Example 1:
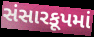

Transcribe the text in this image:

સંસારકૂપમાં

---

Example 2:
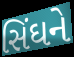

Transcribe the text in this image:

સિંઘને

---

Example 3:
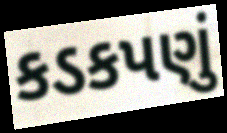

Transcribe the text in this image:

કડકપણું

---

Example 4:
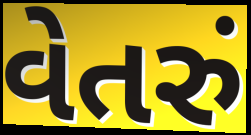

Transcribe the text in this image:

વેતરું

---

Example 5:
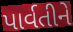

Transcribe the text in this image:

પાર્વતીને